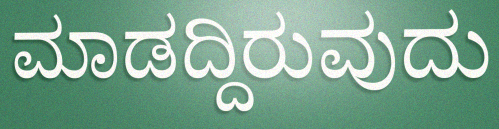
ಮಾಡದ್ದಿರುವುದು